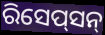
ରିସେପ୍‍ସନ୍